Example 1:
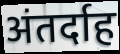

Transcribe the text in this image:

अंतर्दाह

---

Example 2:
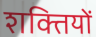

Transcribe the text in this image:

शक्तियों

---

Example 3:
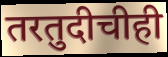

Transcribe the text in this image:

तरतुदीचीही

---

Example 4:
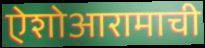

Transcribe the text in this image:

ऐशोआरामाची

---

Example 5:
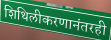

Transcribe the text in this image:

शिथिलीकरणानंतरही